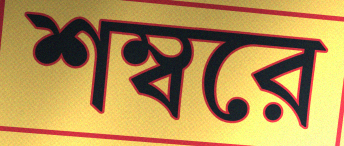
শম্বরে